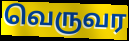
வெருவர